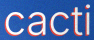
cacti